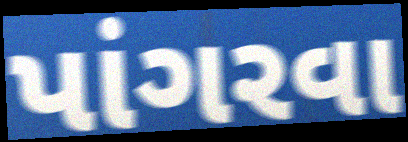
પાંગરવા